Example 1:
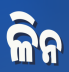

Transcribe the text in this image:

ଳିନ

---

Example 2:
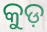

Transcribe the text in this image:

କୁଡ଼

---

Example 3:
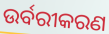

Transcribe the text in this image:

ଉର୍ବରୀକରଣ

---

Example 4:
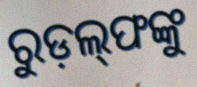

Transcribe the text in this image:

ରୁଡ଼ଲ୍‍ଫଙ୍କୁ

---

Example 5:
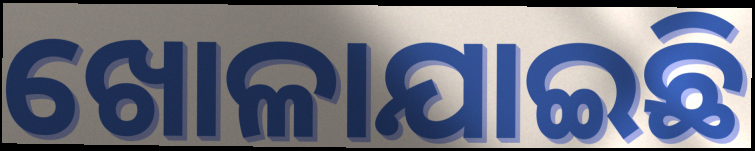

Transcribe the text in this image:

ଖୋଳାଯାଇଛି